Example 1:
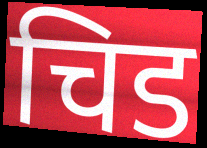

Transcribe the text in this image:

चिड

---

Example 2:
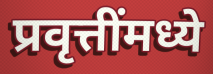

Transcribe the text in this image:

प्रवृत्तींमध्ये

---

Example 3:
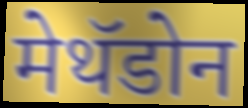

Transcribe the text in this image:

मेथॅडोन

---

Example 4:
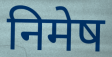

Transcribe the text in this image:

निमेष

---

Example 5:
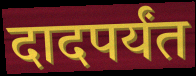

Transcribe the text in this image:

दादपर्यंत